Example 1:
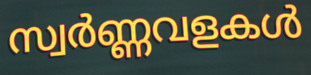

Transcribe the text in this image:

സ്വർണ്ണവളകൾ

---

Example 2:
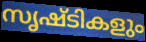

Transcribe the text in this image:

സൃഷ്ടികളും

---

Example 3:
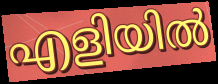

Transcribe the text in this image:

എളിയിൽ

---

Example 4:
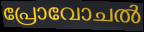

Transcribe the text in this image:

പ്രോവോചൽ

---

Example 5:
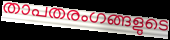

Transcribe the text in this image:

താപതരംഗങ്ങളുടെ